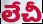
లేచీ